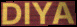
DIYA